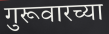
गुरूवारच्या